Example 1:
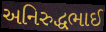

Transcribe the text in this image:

અનિરુદ્ધભાઈ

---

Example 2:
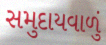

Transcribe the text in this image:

સમુદાયવાળું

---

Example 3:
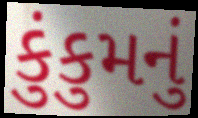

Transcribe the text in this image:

કુંકુમનું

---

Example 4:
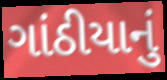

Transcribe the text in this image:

ગાંઠીયાનું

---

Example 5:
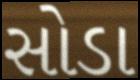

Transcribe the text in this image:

સોડા